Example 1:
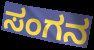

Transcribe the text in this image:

ಸಂಗನ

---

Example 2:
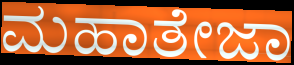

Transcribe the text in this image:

ಮಹಾತೇಜಾ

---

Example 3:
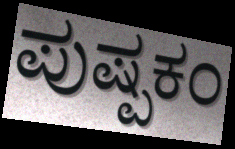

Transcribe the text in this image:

ಪುಷ್ಪಕಂ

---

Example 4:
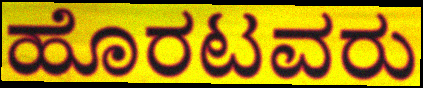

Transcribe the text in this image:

ಹೊರಟವರು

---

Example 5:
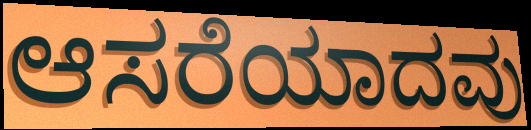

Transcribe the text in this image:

ಆಸರೆಯಾದವು